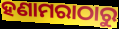
ହଣାମରାଠାରୁ